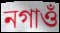
নগাওঁ